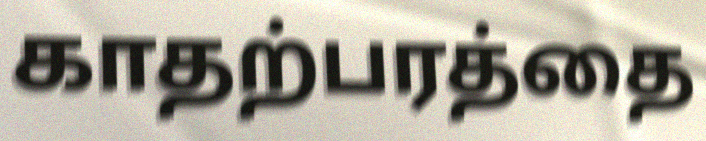
காதற்பரத்தை